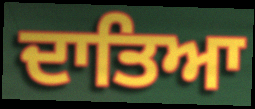
ਦਾਤਿਆ